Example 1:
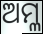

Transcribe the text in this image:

ଅମ୍ଳ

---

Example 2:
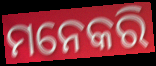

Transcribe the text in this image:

ମନେକରି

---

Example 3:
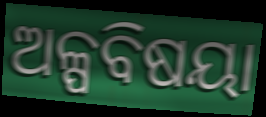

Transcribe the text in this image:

ଅଳ୍ପବିଷୟା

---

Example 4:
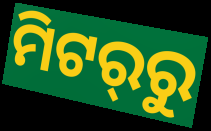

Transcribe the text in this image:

ମିଟର୍‍ରୁ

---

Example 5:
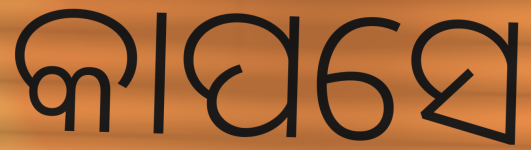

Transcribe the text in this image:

କାପସେ